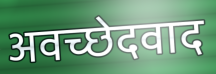
अवच्छेदवाद